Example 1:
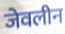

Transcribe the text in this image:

जेवलीन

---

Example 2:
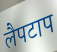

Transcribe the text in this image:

लैपटाप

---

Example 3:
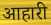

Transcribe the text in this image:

आहारी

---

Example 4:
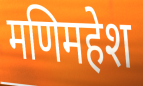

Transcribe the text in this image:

मणिमहेश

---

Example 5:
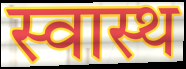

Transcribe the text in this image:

स्‍वास्‍थ